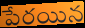
పేరయిన